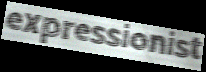
expressionist